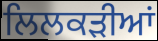
ਲਿਲਕੜੀਆਂ